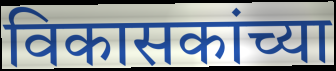
विकासकांच्या